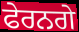
ਫੇਰਨਗੇ